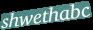
shwethabc